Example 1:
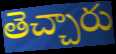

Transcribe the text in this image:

తెచ్చారు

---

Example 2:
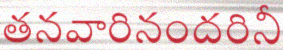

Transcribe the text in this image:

తనవారినందరినీ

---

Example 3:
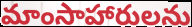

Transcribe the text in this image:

మాంసాహారులను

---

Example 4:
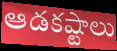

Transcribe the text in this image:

ఆడకష్టాలు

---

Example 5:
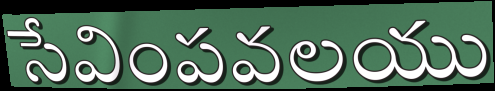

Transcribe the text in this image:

సేవింపవలయు